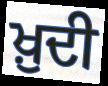
ਖ਼ੁਦੀ